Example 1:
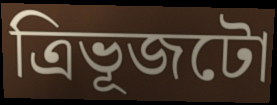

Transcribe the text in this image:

ত্ৰিভূজটো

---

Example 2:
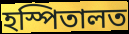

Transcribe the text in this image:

হস্পিতালত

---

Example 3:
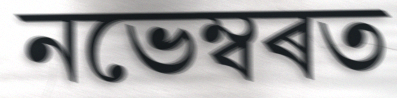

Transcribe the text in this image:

নভেম্বৰত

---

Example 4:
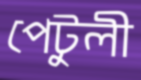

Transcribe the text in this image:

পেটুলী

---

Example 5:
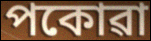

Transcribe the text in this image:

পকোৱা